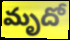
మృదో